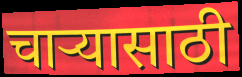
चार्‍यासाठी